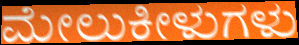
ಮೇಲುಕೀಳುಗಳು